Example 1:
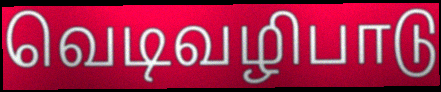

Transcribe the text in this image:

வெடிவழிபாடு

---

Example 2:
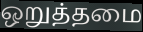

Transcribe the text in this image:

ஒறுத்தமை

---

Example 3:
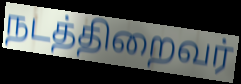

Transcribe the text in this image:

நடத்திறைவர்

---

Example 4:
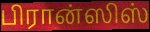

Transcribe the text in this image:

பிரான்ஸிஸ்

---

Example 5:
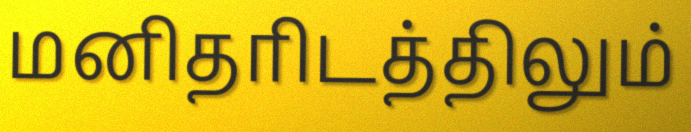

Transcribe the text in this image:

மனிதரிடத்திலும்